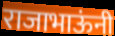
राजाभाऊंनी